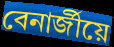
বেনাৰ্জীয়ে